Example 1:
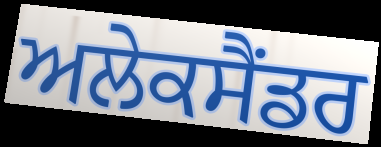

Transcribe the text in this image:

ਅਲੇਕਸੈਂਡਰ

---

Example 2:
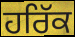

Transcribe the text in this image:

ਹਰਿੱਕ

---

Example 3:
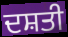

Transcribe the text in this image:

ਦਸ਼ਤੀ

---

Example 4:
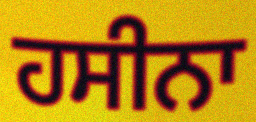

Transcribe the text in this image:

ਹਸੀਨਾ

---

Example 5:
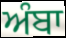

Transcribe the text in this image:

ਅੰਬਾ